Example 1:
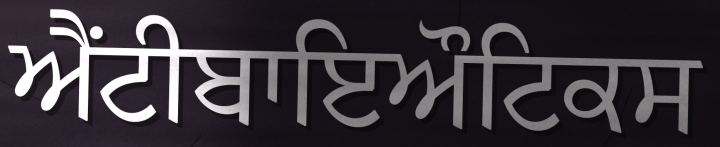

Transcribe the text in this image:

ਐਂਟੀਬਾਇਔਟਿਕਸ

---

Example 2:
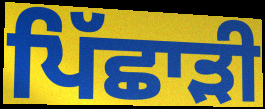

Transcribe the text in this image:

ਪਿੱਛਾੜੀ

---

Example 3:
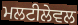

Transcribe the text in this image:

ਮਲਟੀਲੇਵਲ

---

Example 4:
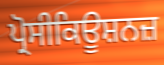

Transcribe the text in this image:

ਪ੍ਰੋਸੀਕਿਊਸ਼ਨਜ਼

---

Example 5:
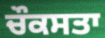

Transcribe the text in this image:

ਚੌਕਸਤਾ